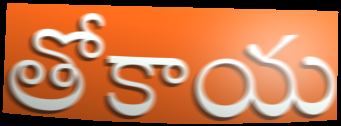
తోకాయ